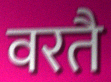
वरतै